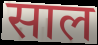
साल